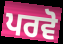
ਪਰਵੋ